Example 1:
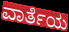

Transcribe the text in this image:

ವಾರ್ತೆಯ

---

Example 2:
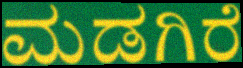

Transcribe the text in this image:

ಮಡಗಿರೆ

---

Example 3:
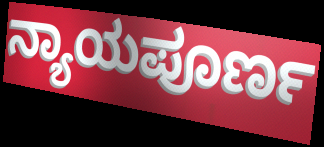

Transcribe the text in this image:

ನ್ಯಾಯಪೂರ್ಣ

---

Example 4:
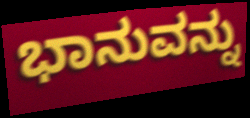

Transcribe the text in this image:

ಭಾನುವನ್ನು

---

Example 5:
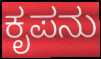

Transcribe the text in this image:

ಕೃಪನು